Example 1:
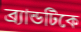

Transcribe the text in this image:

ব্র্যান্ডটিকে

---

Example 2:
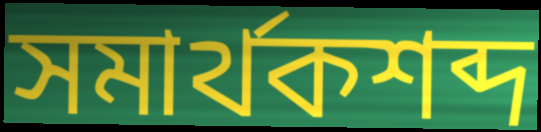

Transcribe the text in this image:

সমার্থকশব্দ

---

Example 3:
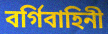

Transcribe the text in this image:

বর্গিবাহিনী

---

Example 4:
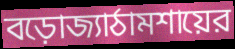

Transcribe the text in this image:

বড়োজ্যাঠামশায়ের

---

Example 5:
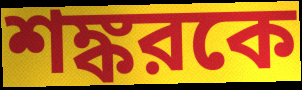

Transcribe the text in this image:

শঙ্করকে